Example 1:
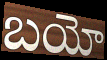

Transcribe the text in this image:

బయో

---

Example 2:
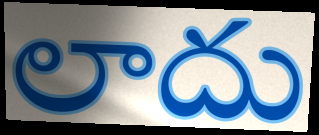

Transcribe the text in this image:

లాదు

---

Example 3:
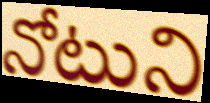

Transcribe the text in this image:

నోటుని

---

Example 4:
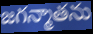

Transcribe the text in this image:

జగన్మాతను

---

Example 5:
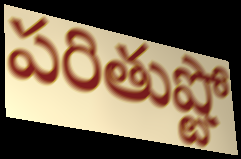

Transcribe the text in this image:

పరితుష్టో